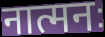
नात्मनः